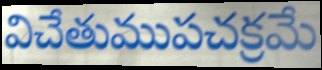
విచేతుముపచక్రమే